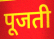
पूजती